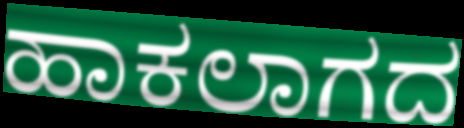
ಹಾಕಲಾಗದ